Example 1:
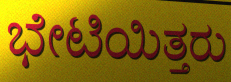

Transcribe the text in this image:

ಭೇಟಿಯಿತ್ತರು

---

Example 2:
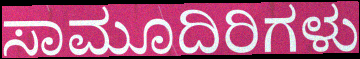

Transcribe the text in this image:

ಸಾಮೂದಿರಿಗಳು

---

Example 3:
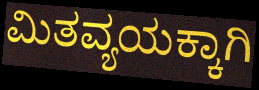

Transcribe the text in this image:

ಮಿತವ್ಯಯಕ್ಕಾಗಿ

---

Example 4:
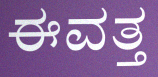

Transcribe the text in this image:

ಈವತ್ತ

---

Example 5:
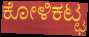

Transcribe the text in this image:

ಕೋಳಿಕಟ್ಟ